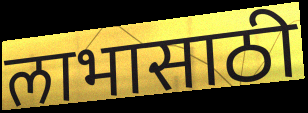
लाभासाठी